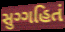
સુગ્ગહિતં